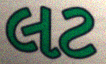
લટ